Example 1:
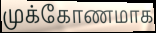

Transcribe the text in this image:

முக்கோணமாக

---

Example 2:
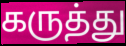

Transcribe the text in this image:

கருத்து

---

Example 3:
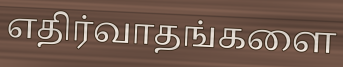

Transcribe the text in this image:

எதிர்வாதங்களை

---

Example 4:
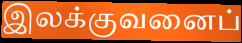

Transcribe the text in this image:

இலக்குவனைப்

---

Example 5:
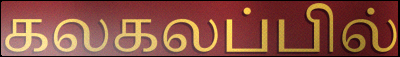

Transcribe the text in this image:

கலகலப்பில்